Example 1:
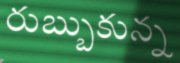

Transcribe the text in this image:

రుబ్బుకున్న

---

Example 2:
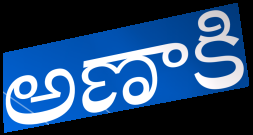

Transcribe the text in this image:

అణాకి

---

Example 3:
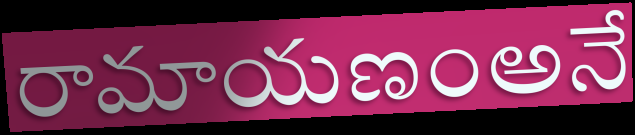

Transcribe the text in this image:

రామాయణంఅనే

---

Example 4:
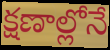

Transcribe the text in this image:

క్షణాల్లోనే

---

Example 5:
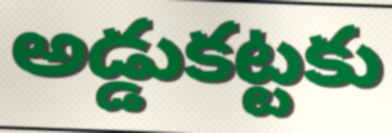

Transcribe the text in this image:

అడ్డుకట్టకు